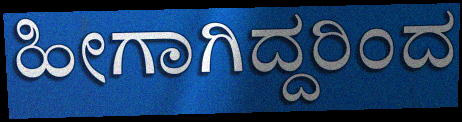
ಹೀಗಾಗಿದ್ದರಿಂದ